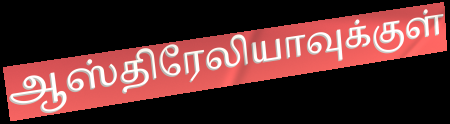
ஆஸ்திரேலியாவுக்குள்